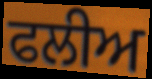
ਫਲੀਅ